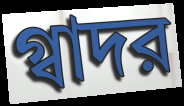
গ্বাদর